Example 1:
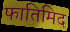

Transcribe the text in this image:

फातिमिद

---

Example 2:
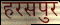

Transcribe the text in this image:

हरसपुर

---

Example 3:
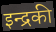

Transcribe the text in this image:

इन्द्रकी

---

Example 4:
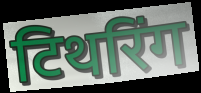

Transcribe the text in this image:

टिथरिंग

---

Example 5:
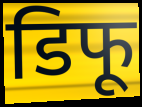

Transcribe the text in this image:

डिफू